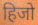
हिजो